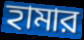
হামার